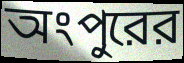
অংপুরের